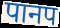
पानप